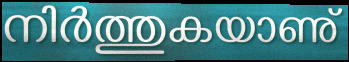
നിർത്തുകയാണു്